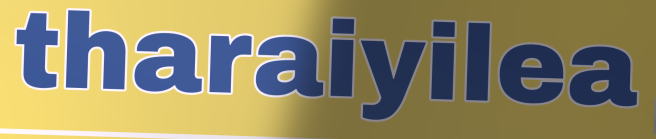
tharaiyilea